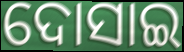
ଦୋସାଇ